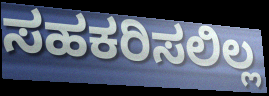
ಸಹಕರಿಸಲಿಲ್ಲ